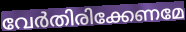
വേർതിരിക്കേണമേ